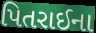
પિતરાઈના